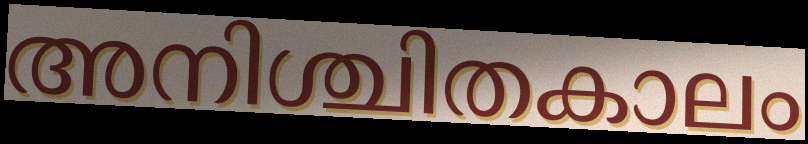
അനിശ്ചിതകാലം